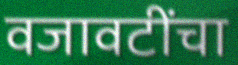
वजावटींचा